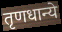
तृणधान्ये